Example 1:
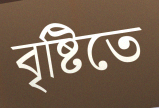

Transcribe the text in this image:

বৃষ্টিতে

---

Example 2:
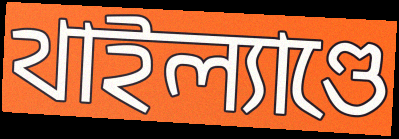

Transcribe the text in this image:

থাইল্যাণ্ডে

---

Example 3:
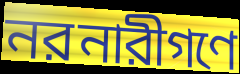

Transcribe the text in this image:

নরনারীগণে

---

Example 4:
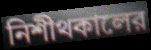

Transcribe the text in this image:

নিশীথকালের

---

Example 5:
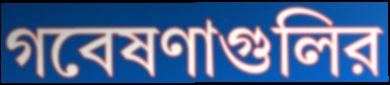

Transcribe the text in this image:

গবেষণাগুলির